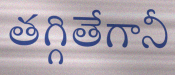
తగ్గితేగానీ